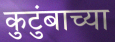
कुटुंबाच्या